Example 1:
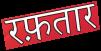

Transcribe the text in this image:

रफ़तार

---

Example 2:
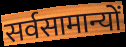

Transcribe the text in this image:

सर्वसामान्यों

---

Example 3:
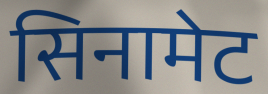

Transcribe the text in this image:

सिनामेट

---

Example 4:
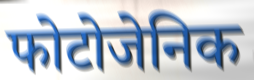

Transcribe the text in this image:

फोटोजेनिक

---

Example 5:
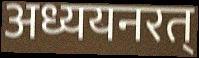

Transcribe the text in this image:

अध्ययनरत्